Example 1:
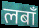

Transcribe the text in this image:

लबाँ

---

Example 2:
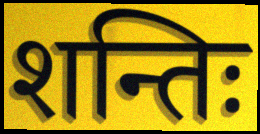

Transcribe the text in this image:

शन्तिः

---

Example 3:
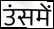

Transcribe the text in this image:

उंसमें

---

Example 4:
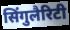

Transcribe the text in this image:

सिंगुलैरिटी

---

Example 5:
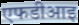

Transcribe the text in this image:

एफडीआइ